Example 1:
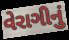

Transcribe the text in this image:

વેરાગીનું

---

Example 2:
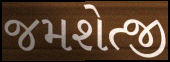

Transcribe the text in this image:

જમશેત્જી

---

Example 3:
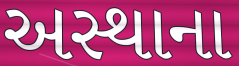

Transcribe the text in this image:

અસ્થાના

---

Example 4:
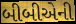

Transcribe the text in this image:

બીબીએની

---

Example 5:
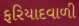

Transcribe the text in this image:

ફરિયાદવાળી